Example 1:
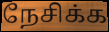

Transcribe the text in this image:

நேசிக்க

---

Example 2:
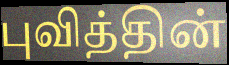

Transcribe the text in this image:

புவித்தின்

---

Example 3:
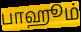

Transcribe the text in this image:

பாஹூம்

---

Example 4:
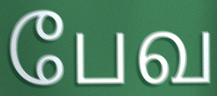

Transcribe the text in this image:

பேவ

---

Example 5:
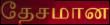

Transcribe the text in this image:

தேசமான